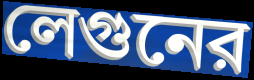
লেগুনের